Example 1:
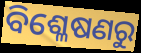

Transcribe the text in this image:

ବିଶ୍ଳେଷଣରୁ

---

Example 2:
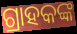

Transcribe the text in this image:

ଗ୍ରାହକଙ୍କ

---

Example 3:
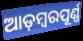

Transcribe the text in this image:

ଆଡ଼ମ୍ବରପୂର୍ଣ୍ଣ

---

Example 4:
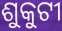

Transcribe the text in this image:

ଶୁକୁଟୀ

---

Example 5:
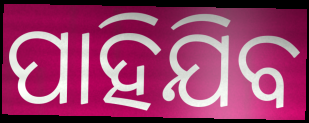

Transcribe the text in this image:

ପାହିଯିବ